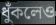
ধুঁকলেও